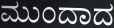
ಮುಂದಾದ